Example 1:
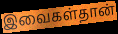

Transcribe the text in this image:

இவைகள்தான்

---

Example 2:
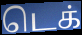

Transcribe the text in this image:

டெக்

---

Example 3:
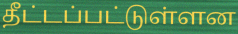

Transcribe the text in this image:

தீட்டப்பட்டுள்ளன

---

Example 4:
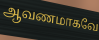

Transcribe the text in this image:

ஆவணமாகவே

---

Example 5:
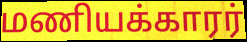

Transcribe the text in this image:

மணியக்காரர்